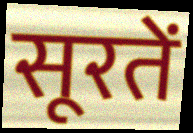
सूरतें